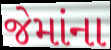
જેમાંના